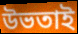
উভতাই